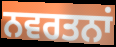
ਨਵਰਤਨਾਂ